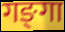
गङ्‍गा